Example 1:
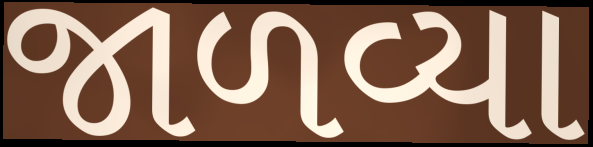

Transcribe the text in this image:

જાળવ્યા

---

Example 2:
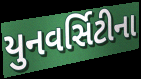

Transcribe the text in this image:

યુનવર્સિટીના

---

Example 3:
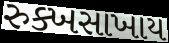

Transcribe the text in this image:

રુક્ખસાખાય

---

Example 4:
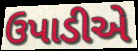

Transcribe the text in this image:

ઉપાડીએ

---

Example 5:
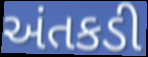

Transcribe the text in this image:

અંતકડી